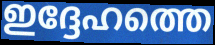
ഇദ്ദേഹത്തെ